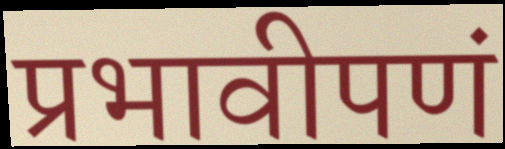
प्रभावीपणं